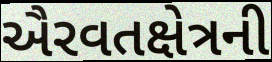
ઐરવતક્ષેત્રની